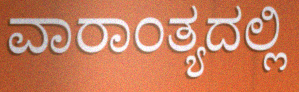
ವಾರಾಂತ್ಯದಲ್ಲಿ